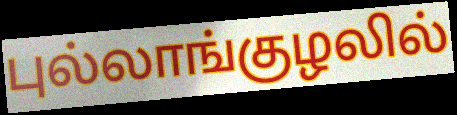
புல்லாங்குழலில்